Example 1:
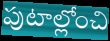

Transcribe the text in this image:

పుటాల్లోంచి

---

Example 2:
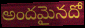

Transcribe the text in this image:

అందమైనదో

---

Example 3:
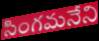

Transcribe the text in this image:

సింగమనేని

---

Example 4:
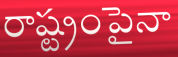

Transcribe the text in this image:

రాష్ట్రంపైనా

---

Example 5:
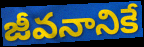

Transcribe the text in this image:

జీవనానికే